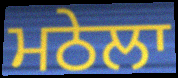
ਮਠੇਲਾ